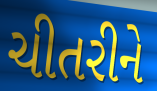
ચીતરીને